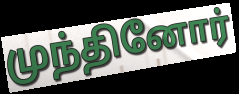
முந்தினோர்